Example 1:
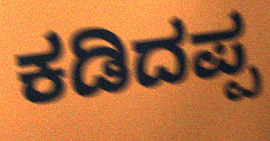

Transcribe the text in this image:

ಕಡಿದಪ್ಪ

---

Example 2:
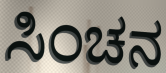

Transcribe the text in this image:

ಸಿಂಚನ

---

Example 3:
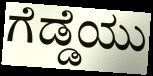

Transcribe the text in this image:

ಗೆಡ್ಡೆಯು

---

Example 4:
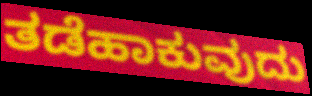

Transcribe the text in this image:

ತಡೆಹಾಕುವುದು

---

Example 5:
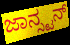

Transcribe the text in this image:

ಜಾನ್ಸ್ಟನ್